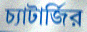
চ্যাটার্জির